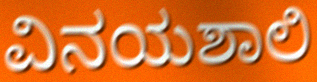
ವಿನಯಶಾಲಿ